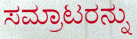
ಸಮ್ರಾಟರನ್ನು